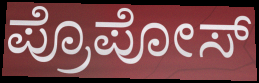
ಪ್ರೊಪೋಸ್